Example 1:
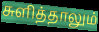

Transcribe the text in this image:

சுளித்தாலும்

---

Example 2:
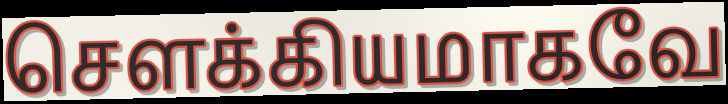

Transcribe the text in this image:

சௌக்கியமாகவே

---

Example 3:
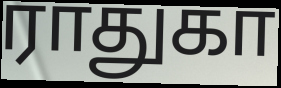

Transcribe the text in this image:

ராதுகா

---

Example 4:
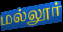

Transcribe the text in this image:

மல்லூர்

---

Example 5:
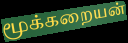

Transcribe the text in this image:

மூக்கறையன்